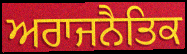
ਅਰਾਜਨੈਤਿਕ